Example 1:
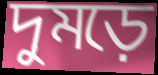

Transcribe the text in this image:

দুমড়ে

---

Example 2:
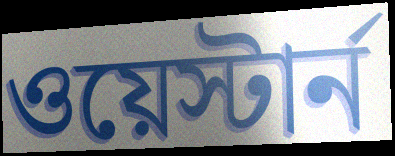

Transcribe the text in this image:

ওয়েস্টার্ন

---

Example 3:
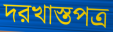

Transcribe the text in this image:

দরখাস্তপত্র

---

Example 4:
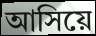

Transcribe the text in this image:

আসিয়ে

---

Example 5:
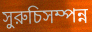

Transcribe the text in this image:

সুরুচিসম্পন্ন